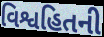
વિશ્વહિતની